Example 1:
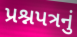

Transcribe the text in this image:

પ્રશ્નપત્રનું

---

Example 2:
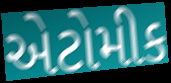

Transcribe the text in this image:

એટોમીક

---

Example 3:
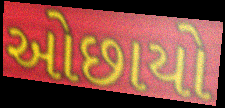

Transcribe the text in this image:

ઓછાયો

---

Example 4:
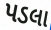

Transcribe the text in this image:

પડલા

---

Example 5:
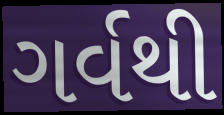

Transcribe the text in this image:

ગર્વથી